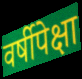
वर्षीपेक्षा